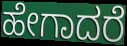
ಹೇಗಾದರೆ